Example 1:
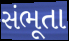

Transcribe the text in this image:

સંભૂતા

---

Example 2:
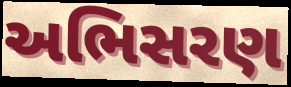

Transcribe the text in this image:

અભિસરણ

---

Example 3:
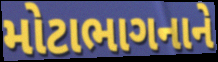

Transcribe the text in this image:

મોટાભાગનાને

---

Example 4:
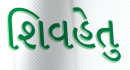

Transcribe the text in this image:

શિવહેતુ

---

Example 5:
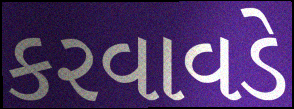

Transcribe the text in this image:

કરવાવડે